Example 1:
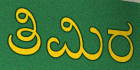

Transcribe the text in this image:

ತಿಮಿರ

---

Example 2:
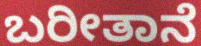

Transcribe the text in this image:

ಬರೀತಾನೆ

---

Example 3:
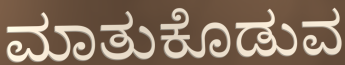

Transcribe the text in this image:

ಮಾತುಕೊಡುವ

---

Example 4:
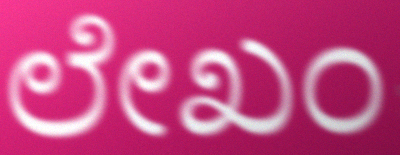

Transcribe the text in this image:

ಲೇಖಂ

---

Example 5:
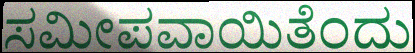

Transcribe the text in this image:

ಸಮೀಪವಾಯಿತೆಂದು